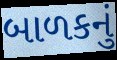
બાળકનું